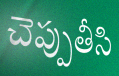
చెప్పుతీసి